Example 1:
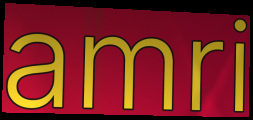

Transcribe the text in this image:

amri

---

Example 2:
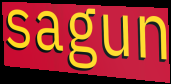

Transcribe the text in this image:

sagun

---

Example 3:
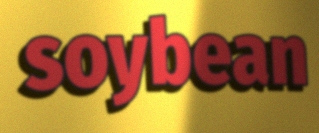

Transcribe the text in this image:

soybean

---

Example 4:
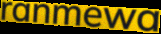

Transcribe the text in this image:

ranmewa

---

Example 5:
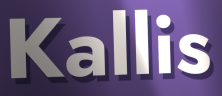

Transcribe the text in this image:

Kallis